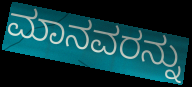
ಮಾನವರನ್ನು